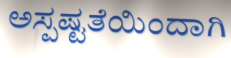
ಅಸ್ಪಷ್ಟತೆಯಿಂದಾಗಿ